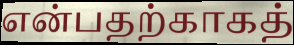
என்பதற்காகத்